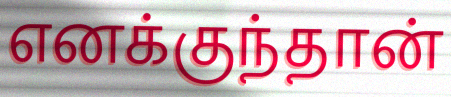
எனக்குந்தான்